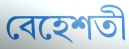
বেহেশতী